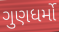
ગુણધર્મો